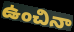
ఉంచినా